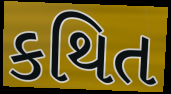
કથિત